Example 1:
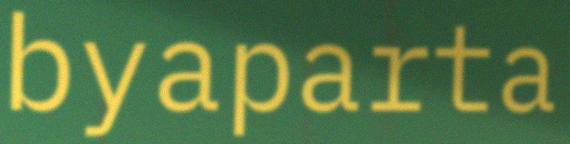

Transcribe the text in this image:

byaparta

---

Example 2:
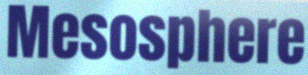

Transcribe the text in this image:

Mesosphere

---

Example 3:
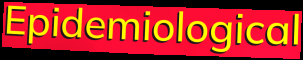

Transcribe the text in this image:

Epidemiological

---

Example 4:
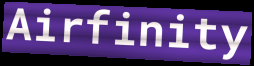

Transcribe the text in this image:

Airfinity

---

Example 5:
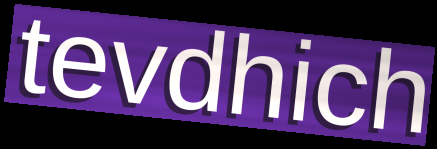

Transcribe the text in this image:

tevdhich